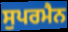
ਸੁਪਰਮੈਨ